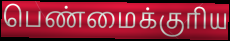
பெண்மைக்குரிய